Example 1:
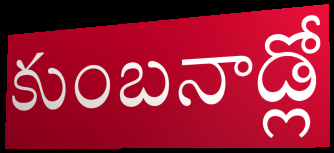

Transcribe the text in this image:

కుంబనాడ్లో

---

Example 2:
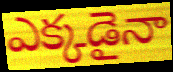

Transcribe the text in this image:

ఎక్కడైనా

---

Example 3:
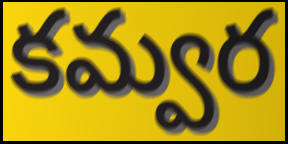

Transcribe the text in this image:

కమ్వర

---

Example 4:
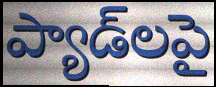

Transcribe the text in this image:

ప్యాడ్‌లపై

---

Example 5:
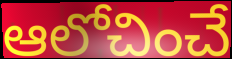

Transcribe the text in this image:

ఆలోచించే